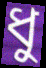
ধু